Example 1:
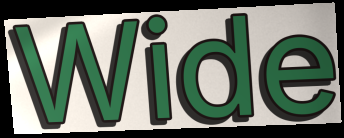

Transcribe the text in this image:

Wide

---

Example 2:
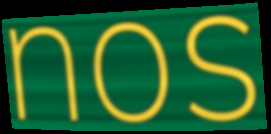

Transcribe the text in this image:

nos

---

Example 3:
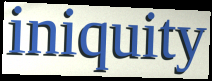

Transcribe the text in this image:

iniquity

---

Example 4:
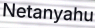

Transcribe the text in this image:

Netanyahu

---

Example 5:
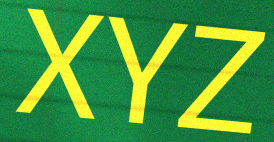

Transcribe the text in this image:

XYZ